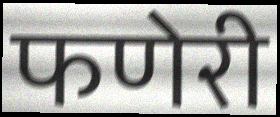
फणेरी